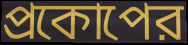
প্রকোপের